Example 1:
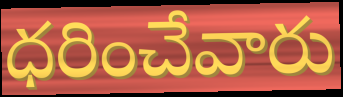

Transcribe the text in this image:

ధరించేవారు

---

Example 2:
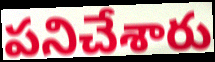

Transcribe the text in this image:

పనిచేశారు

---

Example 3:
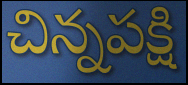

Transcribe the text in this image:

చిన్నపక్షి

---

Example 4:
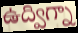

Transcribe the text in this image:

ఉద్విగ్నా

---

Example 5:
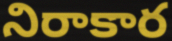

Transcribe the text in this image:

నిరాకార